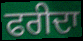
ਫਰੀਦਾ